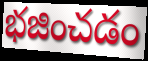
భజించడం